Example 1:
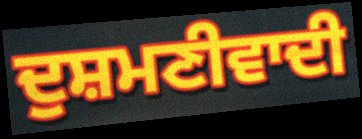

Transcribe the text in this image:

ਦੁਸ਼ਮਣੀਵਾਦੀ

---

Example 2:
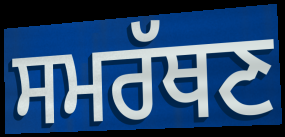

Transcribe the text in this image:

ਸਮਰੱਥਣ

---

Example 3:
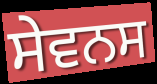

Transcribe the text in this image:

ਸੇਵਨਸ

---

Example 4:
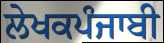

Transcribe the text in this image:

ਲੇਖਕਪੰਜਾਬੀ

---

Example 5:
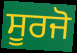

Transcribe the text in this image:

ਸੂਰਜੋ